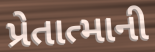
પ્રેતાત્માની